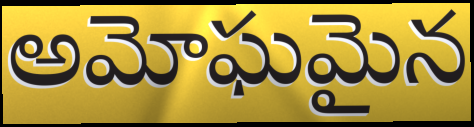
అమోఘమైన